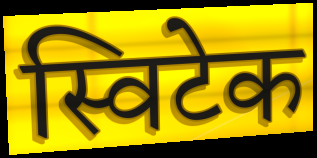
स्विटेक